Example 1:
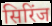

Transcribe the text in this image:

सिरिंज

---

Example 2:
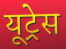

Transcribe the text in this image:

यूट्रेस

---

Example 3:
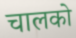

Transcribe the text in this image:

चालको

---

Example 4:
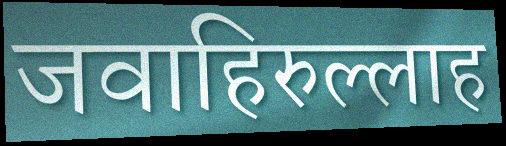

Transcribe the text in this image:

जवाहिरुल्लाह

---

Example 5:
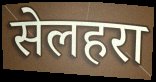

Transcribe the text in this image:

सेलहरा